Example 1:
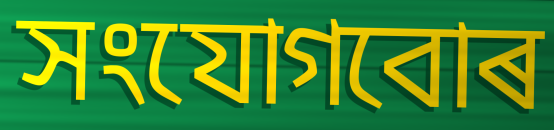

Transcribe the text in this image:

সংযোগবোৰ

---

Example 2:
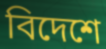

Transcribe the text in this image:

বিদেশে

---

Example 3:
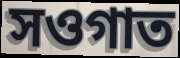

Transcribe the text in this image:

সওগাত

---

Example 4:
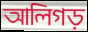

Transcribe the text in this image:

আলিগড়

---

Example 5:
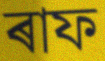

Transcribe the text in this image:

ৰাফ